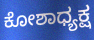
ಕೋಶಾಧ್ಯಕ್ಷ